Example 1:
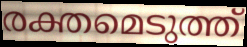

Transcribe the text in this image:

രക്തമെടുത്ത്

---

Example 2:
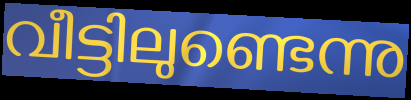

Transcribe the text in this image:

വീട്ടിലുണ്ടെന്നു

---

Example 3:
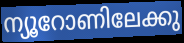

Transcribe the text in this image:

ന്യൂറോണിലേക്കു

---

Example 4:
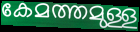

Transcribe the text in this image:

കേമത്തമുള്ള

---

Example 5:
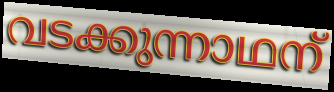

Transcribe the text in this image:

വടക്കുന്നാഥന്